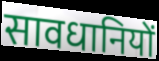
सावधानियों